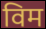
विम